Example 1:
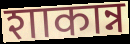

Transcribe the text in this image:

शाकान्न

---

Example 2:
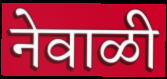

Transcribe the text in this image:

नेवाळी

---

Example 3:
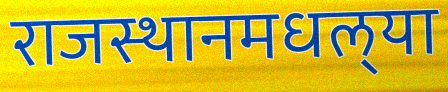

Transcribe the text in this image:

राजस्थानमधल्या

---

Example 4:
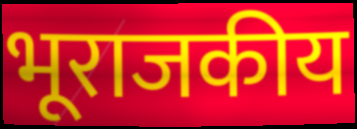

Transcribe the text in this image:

भूराजकीय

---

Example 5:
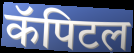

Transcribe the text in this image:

कॅपिटल